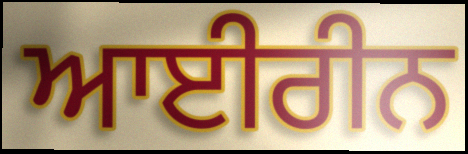
ਆਈਰੀਨ